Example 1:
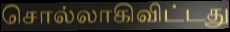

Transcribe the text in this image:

சொல்லாகிவிட்டது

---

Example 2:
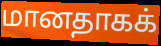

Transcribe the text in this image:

மானதாகக்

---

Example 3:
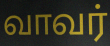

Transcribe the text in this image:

வாவர்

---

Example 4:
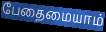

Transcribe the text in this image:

பேதைமையாம்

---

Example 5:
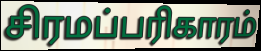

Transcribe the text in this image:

சிரமப்பரிகாரம்